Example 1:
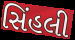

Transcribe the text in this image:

સિંહલી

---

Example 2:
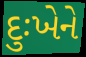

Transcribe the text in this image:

દુઃખેને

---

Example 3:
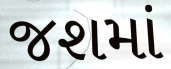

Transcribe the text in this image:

જશમાં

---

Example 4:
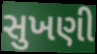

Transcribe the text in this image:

સુખણી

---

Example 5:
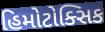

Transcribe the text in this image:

હિમોટોક્સિક